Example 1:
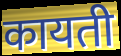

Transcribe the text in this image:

कायती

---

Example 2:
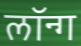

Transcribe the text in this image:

लॉन्ग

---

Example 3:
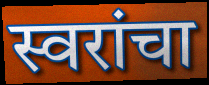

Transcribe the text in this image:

स्वरांचा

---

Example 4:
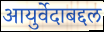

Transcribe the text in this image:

आयुर्वेदाबद्दल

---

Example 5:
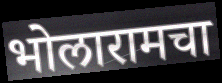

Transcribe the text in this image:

भोलारामचा